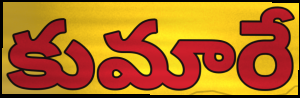
కుమారే